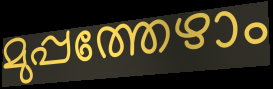
മുപ്പത്തേഴാം